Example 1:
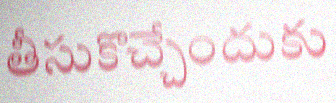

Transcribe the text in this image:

తీసుకొచ్చేందుకు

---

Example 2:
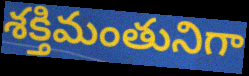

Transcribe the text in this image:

శక్తిమంతునిగా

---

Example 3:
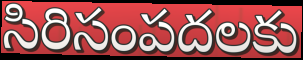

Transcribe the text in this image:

సిరిసంపదలకు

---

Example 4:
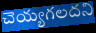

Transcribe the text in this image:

చెయ్యగలదని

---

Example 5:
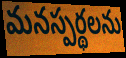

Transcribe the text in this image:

మనస్పర్థలను